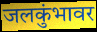
जलकुंभावर